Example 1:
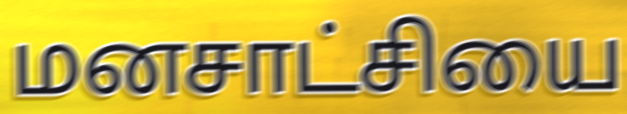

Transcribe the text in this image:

மனசாட்சியை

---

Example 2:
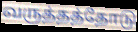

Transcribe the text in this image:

வருத்தத்தோடு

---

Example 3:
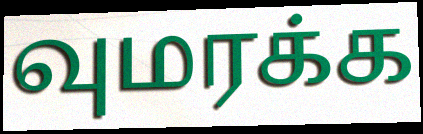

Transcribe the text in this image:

வுமரக்க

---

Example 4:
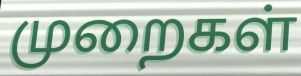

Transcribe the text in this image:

முறைகள்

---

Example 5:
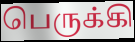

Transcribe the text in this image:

பெருக்கி